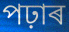
পঢ়াৰ